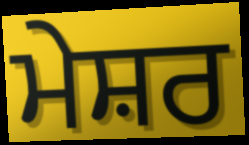
ਮੇਸ਼ਰ